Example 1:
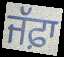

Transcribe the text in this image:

ਜੱਫ਼ਾ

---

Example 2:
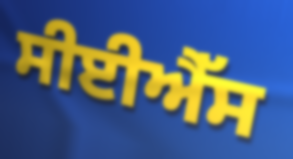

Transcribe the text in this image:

ਸੀਈਐੱਸ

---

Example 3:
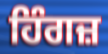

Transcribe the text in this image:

ਹਿੰਗਜ਼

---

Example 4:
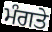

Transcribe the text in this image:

ਮੰਗਤੇ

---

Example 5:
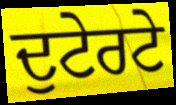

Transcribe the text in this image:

ਦੁਟੇਰਟੇ